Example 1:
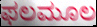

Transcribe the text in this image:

ಫಲಮೂಲ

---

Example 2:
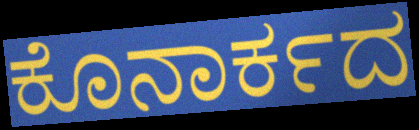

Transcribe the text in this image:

ಕೊನಾರ್ಕದ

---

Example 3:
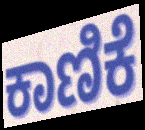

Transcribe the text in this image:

ಕಾಣಿಕೆ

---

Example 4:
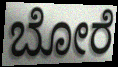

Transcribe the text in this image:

ಬೋರೆ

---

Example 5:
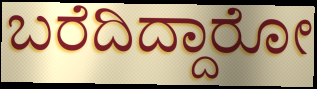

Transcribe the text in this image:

ಬರೆದಿದ್ದಾರೋ